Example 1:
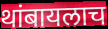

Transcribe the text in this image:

थांबायलाच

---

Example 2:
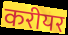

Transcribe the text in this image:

करीयर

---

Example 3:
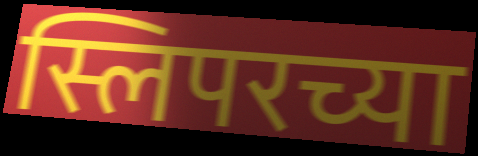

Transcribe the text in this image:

स्लिपरच्या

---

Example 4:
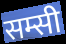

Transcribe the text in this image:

सम्सी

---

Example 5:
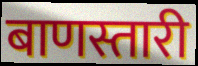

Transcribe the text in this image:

बाणस्तारी